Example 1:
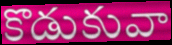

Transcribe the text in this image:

కొడుకువా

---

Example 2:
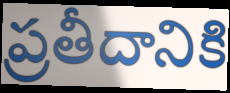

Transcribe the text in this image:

ప్రతీదానికి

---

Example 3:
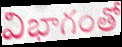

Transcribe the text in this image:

విభాగంతో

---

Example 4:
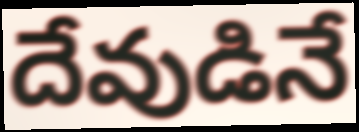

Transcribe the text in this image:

దేవుడినే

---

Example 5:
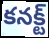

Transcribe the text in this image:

కనక్ట్